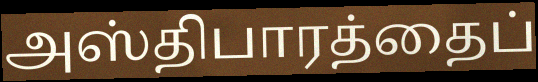
அஸ்திபாரத்தைப்